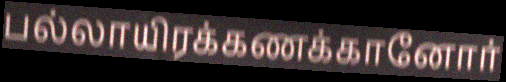
பல்லாயிரக்கணக்கானோர்